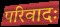
परिवादः